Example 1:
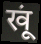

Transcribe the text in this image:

खूं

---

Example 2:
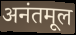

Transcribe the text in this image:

अनंतमूल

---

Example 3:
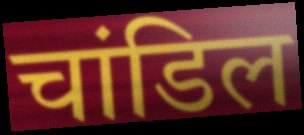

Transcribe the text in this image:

चांडिल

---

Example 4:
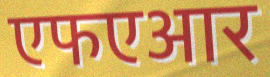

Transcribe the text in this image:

एफएआर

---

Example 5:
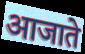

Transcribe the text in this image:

आजाते